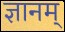
ज्ञानम्